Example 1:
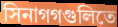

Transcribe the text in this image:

সিনাগগগুলিতে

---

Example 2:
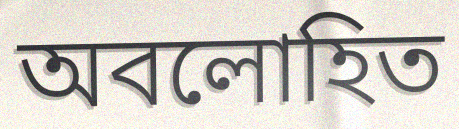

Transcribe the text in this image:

অবলোহিত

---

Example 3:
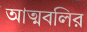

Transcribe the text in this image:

আত্মবলির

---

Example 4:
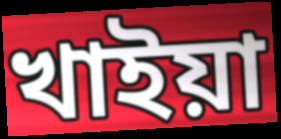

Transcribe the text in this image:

খাইয়া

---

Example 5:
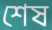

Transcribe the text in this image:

শেষ